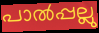
പാൽപ്പല്ലു